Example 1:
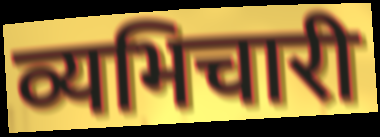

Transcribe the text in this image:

व्यभिचारी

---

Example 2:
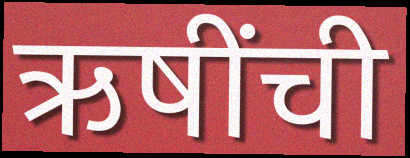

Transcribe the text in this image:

ऋषींची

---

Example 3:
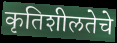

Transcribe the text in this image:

कृतिशीलतेचे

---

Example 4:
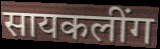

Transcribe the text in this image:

सायकलींग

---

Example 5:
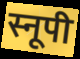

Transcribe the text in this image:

स्नूपी